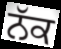
ਨੱਕ